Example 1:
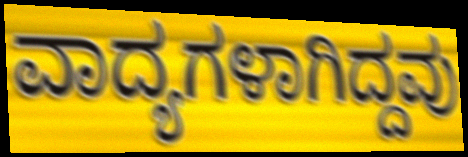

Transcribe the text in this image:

ವಾದ್ಯಗಳಾಗಿದ್ದವು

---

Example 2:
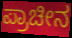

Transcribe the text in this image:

ಪ್ರಾಚೀನ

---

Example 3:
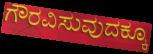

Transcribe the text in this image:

ಗೌರವಿಸುವುದಕ್ಕೂ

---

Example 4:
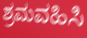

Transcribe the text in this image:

ಶ್ರಮವಹಿಸಿ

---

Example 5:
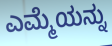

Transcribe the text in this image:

ಎಮ್ಮೆಯನ್ನು